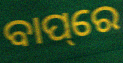
ବାପ୍‌ରେ